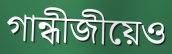
গান্ধীজীয়েও